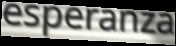
esperanza